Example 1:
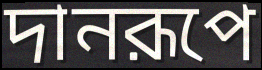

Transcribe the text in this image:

দানরূপে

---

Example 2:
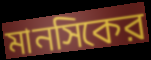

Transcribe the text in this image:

মানসিকের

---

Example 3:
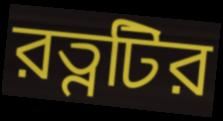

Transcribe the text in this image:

রত্নটির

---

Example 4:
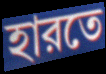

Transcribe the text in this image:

হারতে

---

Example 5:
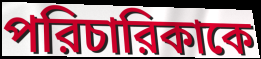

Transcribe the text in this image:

পরিচারিকাকে